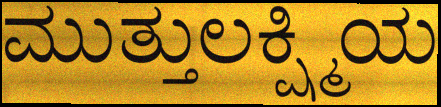
ಮುತ್ತುಲಕ್ಷ್ಮಿಯ